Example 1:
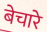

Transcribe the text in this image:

बेचारे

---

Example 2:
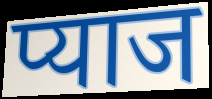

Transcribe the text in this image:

प्याज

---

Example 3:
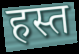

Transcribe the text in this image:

हस्त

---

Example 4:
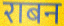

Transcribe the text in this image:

राबन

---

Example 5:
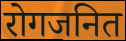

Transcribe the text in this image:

रोगजनित